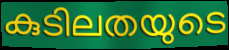
കുടിലതയുടെ